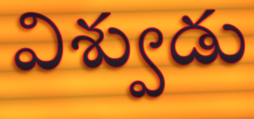
విశ్వుడు